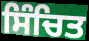
ਸਿੰਚਿਤ